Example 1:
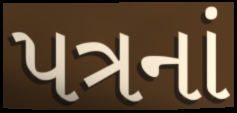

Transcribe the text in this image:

પત્રનાં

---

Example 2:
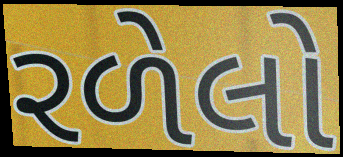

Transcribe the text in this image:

રળેલો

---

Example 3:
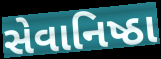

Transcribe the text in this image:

સેવાનિષ્ઠા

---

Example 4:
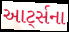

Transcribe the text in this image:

આર્ટ્સના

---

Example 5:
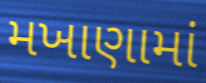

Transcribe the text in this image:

મખાણામાં